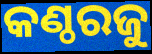
କଣ୍ଠରଜୁ